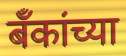
बॅँकांच्या